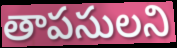
తాపసులని